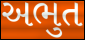
અભુત